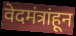
वेदमंत्रांहून